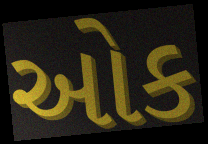
ઓક